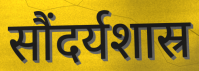
सौंदर्यशास्र